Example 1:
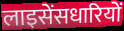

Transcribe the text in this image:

लाइसेंसधारियों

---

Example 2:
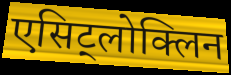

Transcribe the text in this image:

एसिट्लोक्लिन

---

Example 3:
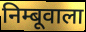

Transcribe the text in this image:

निम्बूवाला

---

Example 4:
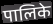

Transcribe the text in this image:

पालिके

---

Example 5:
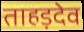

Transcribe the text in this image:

ताहड़देव